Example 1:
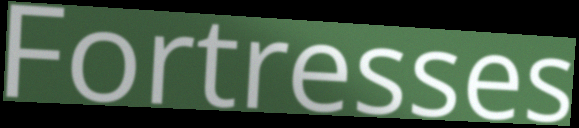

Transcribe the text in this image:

Fortresses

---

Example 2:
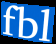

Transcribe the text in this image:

fbl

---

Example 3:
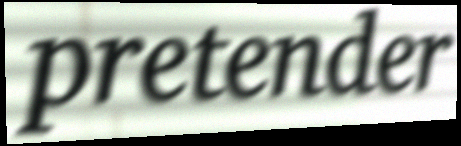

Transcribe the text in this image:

pretender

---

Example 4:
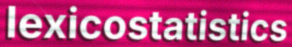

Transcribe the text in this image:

lexicostatistics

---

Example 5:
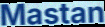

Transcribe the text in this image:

Mastan